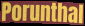
Porunthal